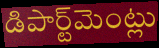
డిపార్ట్‌మెంట్లు